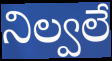
నిల్వలే